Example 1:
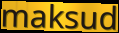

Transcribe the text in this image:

maksud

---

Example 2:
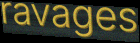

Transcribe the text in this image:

ravages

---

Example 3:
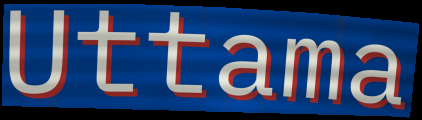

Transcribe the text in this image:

Uttama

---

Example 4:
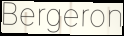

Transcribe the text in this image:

Bergeron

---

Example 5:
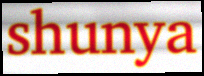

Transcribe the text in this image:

shunya